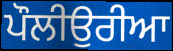
ਪੌਲੀਉਰੀਆ